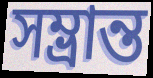
সম্ভ্রান্ত